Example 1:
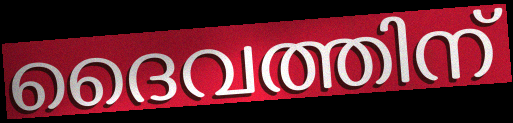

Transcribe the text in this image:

ദൈവത്തിന്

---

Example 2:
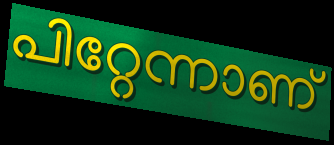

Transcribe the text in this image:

പിറ്റേന്നാണ്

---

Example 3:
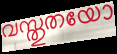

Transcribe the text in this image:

വസ്തുതയോ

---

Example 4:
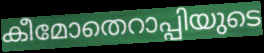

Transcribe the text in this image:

കീമോതെറാപ്പിയുടെ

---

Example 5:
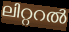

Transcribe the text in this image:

ലിറ്ററൽ